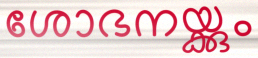
ശോഭനയ്ക്കും